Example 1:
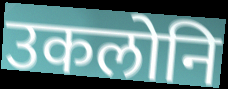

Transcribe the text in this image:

उकलोनि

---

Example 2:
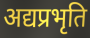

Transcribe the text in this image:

अद्यप्रभृति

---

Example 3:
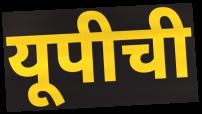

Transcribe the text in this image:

यूपीची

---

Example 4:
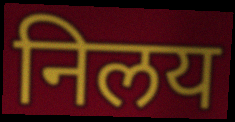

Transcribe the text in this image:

निलय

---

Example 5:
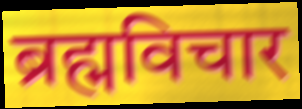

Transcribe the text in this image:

ब्रह्मविचार